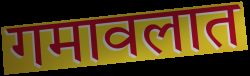
गमावलात